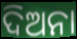
ଦିଅନା